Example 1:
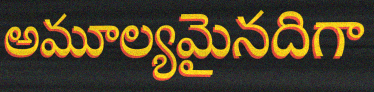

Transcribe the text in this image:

అమూల్యమైనదిగా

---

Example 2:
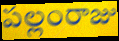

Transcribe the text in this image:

పల్లంరాజు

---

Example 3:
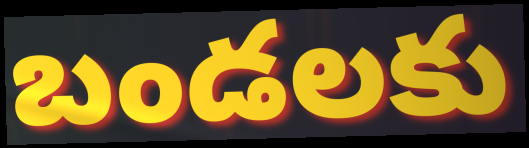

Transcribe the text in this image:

బండలకు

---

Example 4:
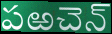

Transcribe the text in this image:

పఱచెన్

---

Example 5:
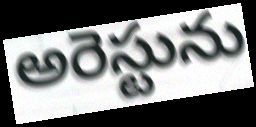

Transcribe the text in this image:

అరెస్టును